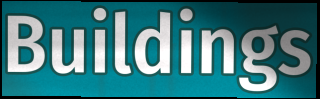
Buildings